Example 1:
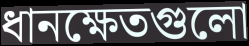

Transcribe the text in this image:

ধানক্ষেতগুলো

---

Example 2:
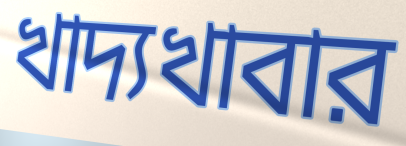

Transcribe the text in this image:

খাদ্যখাবার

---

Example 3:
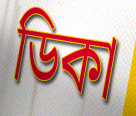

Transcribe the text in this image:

ডিকা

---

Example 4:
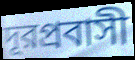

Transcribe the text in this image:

দূরপ্রবাসী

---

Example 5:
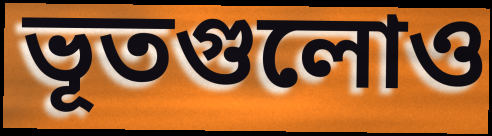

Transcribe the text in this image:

ভূতগুলোও